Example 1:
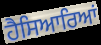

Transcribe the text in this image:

ਹੈਸਿਆਰਿਆਂ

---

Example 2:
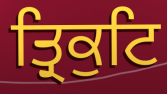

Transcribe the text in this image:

ਤ੍ਰਿਕੁਟਿ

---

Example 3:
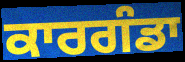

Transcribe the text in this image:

ਕਾਰਗੰਡਾ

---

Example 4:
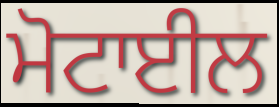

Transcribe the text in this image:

ਮੋਟਾਈਲ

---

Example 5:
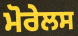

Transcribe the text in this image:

ਮੋਰੇਲਸ